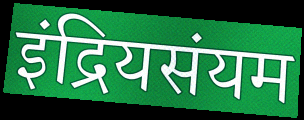
इंद्रियसंयम